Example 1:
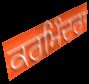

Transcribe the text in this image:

ਕਰਮਿੰਦਰਾ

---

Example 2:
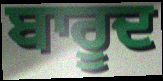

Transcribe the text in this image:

ਬਾਰੂਦ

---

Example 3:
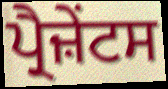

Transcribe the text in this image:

ਪ੍ਰੈਜ਼ੇਂਟਸ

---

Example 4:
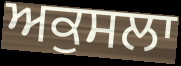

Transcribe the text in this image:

ਅਕੁਸਲਾ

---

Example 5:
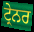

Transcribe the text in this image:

ਟ੍ਰੇਨਰ